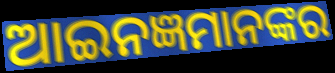
ଆଇନଜ୍ଞମାନଙ୍କର